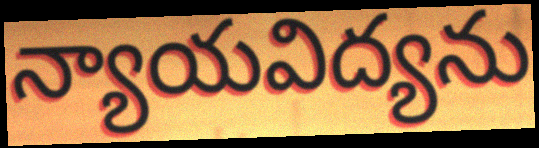
న్యాయవిద్యను